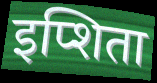
इप्शिता